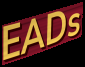
EADs